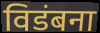
विडंबना